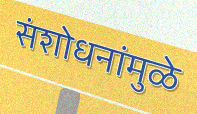
संशोधनांमुळे